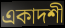
একাদশী